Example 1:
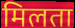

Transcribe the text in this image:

मिलता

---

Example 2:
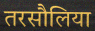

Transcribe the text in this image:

तरसौलिया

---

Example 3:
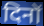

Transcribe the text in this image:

दिनों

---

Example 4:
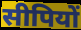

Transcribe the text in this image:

सीपियों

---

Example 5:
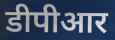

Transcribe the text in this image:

डीपीआर